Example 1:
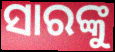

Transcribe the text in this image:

ସାରଙ୍କୁ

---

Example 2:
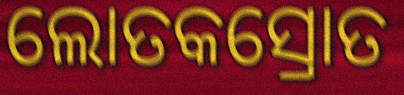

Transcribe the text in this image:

ଲୋତକସ୍ରୋତ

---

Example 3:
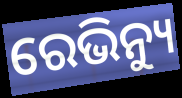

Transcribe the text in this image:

ରେଭିନ୍ୟୁ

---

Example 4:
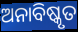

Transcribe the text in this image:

ଅନାବିଷ୍କୃତ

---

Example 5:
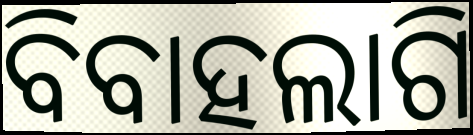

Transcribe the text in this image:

ବିବାହଲାଗି